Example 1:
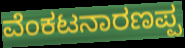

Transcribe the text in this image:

ವೆಂಕಟನಾರಣಪ್ಪ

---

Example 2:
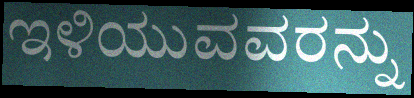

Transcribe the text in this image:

ಇಳಿಯುವವರನ್ನು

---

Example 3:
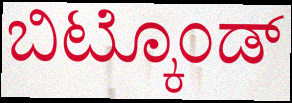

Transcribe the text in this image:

ಬಿಟ್ಕೊಂಡ್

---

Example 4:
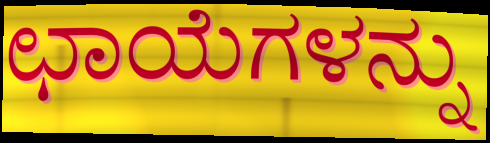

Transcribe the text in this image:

ಛಾಯೆಗಳನ್ನು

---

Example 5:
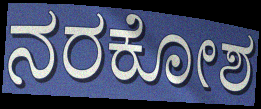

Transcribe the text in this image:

ನರಕೋಶ